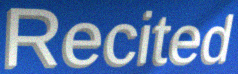
Recited